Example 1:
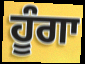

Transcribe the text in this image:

ਹੂੰਗਾ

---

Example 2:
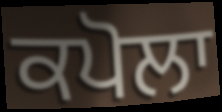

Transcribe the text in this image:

ਕਪੋਲਾ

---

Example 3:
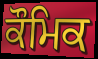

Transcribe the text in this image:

ਕੌਮਿਕ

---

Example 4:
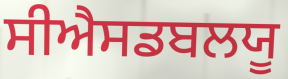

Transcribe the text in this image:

ਸੀਐਸਡਬਲਯੂ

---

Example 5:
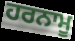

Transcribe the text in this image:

ਹਰਨਾਮੂ